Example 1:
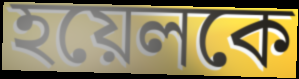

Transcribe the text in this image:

হয়েলকে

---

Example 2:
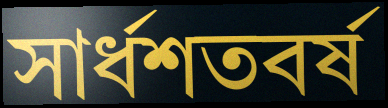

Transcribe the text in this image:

সার্ধশতবর্ষ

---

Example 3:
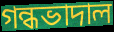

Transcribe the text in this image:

গন্ধভাদাল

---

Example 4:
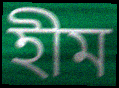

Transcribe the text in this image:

হীম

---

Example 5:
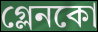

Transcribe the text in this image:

গ্লেনকো